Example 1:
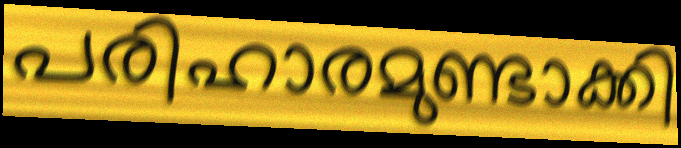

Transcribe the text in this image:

പരിഹാരമുണ്ടാക്കി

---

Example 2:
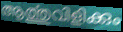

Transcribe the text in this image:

ആൎത്തുവിളിക്കും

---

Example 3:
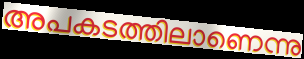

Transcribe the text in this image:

അപകടത്തിലാണെന്നു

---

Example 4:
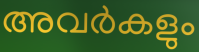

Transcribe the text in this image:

അവർകളും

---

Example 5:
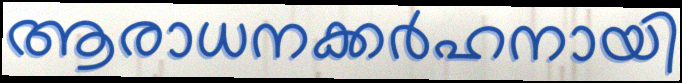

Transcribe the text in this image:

ആരാധനക്കർഹനായി